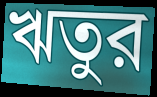
ঋতুর